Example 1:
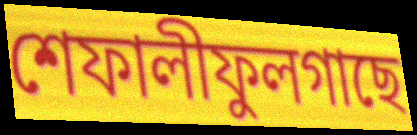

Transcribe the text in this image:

শেফালীফুলগাছে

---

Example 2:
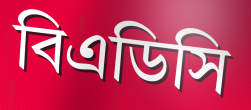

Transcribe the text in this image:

বিএডিসি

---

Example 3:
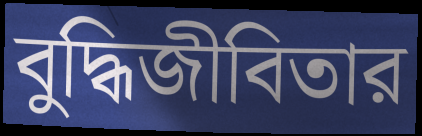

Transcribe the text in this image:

বুদ্ধিজীবিতার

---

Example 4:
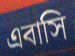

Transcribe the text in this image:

এবাসি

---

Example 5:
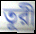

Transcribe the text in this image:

তূরী